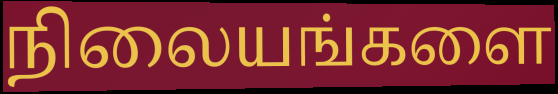
நிலையங்களை